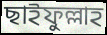
ছাইফুল্লাহ